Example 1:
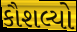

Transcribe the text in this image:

કૌશલ્યો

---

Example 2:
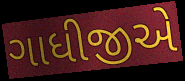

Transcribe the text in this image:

ગાધીજીએ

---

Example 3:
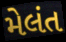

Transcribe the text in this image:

મેલંત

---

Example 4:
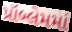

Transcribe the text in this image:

પ્રૉબ્લેમમાં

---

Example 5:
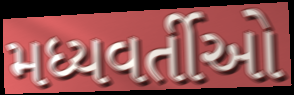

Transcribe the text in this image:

મધ્યવર્તીઓ